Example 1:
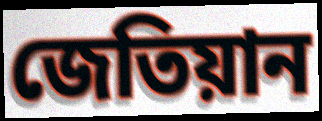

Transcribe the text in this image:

জেতিয়ান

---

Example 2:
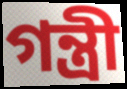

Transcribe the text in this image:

গন্ত্রী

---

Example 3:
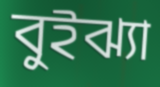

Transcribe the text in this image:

বুইঝ্যা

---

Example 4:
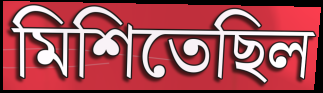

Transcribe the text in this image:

মিশিতেছিল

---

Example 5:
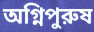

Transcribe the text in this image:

অগ্নিপুরুষ